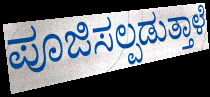
ಪೂಜಿಸಲ್ಪಡುತ್ತಾಳೆ